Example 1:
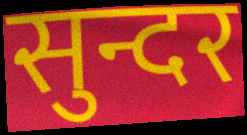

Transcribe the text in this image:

सुन्‍दर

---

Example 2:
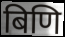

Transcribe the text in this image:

बिणि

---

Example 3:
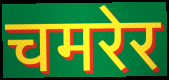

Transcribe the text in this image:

चमरेर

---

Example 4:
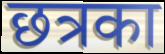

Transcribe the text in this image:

छत्रका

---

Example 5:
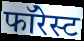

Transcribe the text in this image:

फॉरेस्‍ट